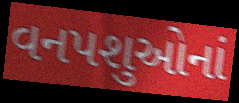
વનપશુઓનાં